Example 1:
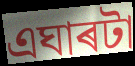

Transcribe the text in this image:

এঘাৰটা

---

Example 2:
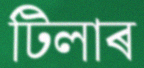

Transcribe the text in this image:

টিলাৰ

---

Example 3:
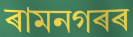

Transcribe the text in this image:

ৰামনগৰৰ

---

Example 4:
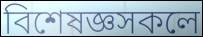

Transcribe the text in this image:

বিশেষজ্ঞসকলে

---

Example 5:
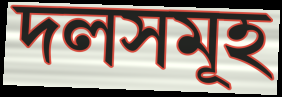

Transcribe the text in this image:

দলসমূহ